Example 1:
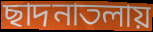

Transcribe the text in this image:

ছাদনাতলায়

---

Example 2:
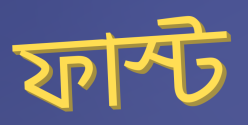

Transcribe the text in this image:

ফাস্ট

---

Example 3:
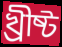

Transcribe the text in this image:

খ্রীষ্ট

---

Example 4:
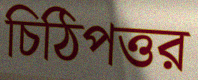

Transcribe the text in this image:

চিঠিপত্তর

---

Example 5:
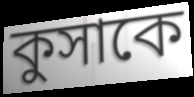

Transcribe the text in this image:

কুসাকে